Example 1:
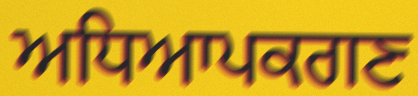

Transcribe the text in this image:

ਅਧਿਆਪਕਗਣ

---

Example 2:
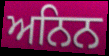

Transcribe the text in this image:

ਅਨਿਨ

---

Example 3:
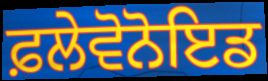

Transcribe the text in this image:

ਫ਼ਲੇਵੋਨੋਇਡ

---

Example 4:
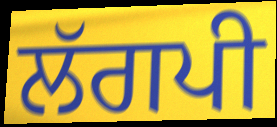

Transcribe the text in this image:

ਲੱਗਪੀ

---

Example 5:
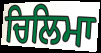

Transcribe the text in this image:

ਚਿਲਿਮਾ